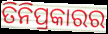
ତିନିପ୍ରକାରର